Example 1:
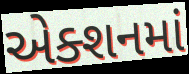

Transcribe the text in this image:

એક્શનમાં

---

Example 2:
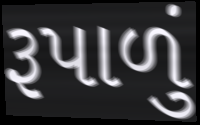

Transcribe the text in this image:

રૂપાળું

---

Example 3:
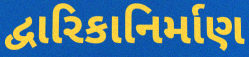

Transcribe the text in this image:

દ્વારિકાનિર્માણ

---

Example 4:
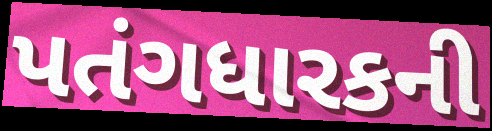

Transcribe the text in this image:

પતંગધારકની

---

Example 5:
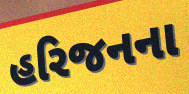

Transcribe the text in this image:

હરિજનના